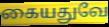
கையதுவே